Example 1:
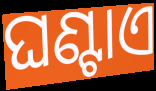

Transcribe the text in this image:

ଘଣ୍ଟାଏ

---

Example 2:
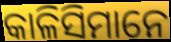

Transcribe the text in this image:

କାଳିସିମାନେ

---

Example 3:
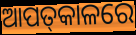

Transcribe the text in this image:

ଆପତ୍‌କାଳରେ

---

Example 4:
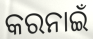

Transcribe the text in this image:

କରନାଇଁ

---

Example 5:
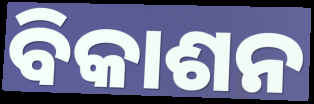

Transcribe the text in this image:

ବିକାଶନ